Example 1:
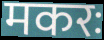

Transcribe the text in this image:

मकरः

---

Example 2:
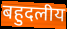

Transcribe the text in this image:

बहुदलीय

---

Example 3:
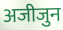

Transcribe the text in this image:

अजीजुन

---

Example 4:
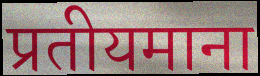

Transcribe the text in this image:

प्रतीयमाना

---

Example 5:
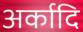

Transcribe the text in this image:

अर्कादि